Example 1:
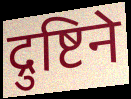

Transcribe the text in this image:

द्रुष्टिने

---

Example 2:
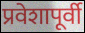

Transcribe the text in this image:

प्रवेशापूर्वी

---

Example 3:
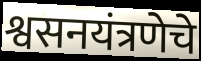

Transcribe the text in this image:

श्वसनयंत्रणेचे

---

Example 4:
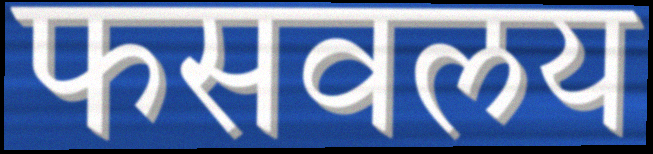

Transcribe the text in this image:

फसवलय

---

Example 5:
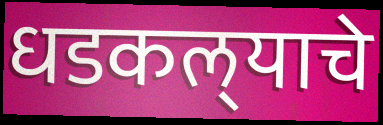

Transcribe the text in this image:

धडकल्याचे